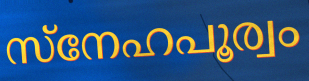
സ്നേഹപൂര്വം